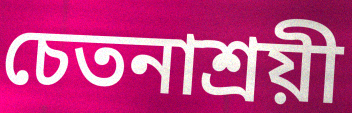
চেতনাশ্রয়ী